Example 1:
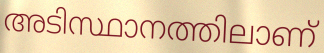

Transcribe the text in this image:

അടിസ്ഥാനത്തിലാണ്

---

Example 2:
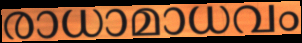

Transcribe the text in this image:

രാധാമാധവം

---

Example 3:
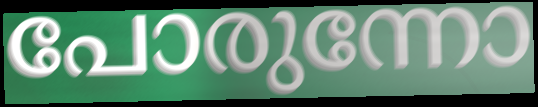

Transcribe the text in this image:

പോരുന്നോ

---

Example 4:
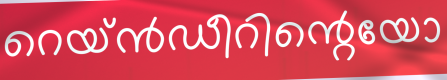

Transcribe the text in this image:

റെയ്ൻഡീറിന്റെയോ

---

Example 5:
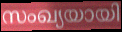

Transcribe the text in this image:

സംഖ്യയായി